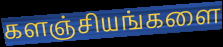
களஞ்சியங்களை